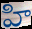
హి